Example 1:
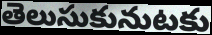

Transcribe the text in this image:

తెలుసుకునుటకు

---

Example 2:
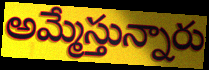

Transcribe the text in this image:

అమ్మేస్తున్నారు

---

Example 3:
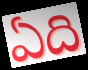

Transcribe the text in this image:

ఏది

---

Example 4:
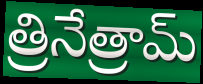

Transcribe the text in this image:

త్రినేత్రామ్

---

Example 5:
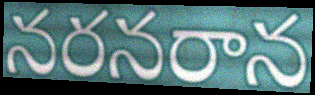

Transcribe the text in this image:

నరనరాన